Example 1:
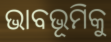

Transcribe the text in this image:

ଭାବଭୂମିକୁ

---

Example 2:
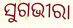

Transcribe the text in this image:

ସୁଗଭୀରା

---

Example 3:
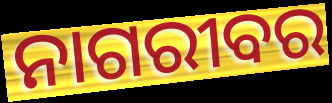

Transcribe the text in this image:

ନାଗରୀବର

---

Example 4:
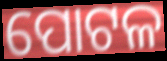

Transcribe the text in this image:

ପୋଟଳ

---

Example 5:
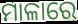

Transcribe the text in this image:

ମାଳାରେ